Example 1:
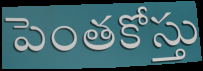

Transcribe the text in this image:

పెంతకోస్తు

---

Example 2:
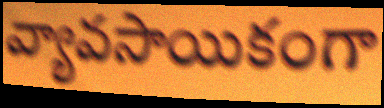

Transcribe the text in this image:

వ్యావసాయికంగా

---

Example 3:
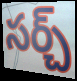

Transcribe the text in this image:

సర్చ్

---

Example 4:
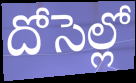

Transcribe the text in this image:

దోసెల్లో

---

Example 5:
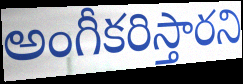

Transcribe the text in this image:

అంగీకరిస్తారని